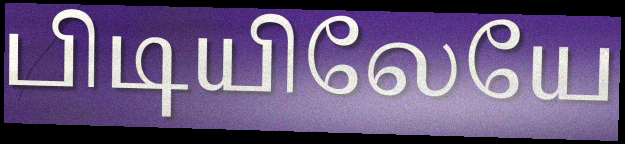
பிடியிலேயே